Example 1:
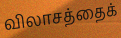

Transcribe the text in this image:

விலாசத்தைக்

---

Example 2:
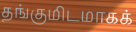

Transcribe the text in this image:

தங்குமிடமாகக்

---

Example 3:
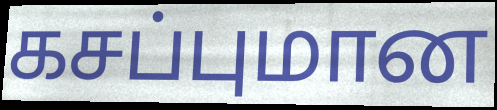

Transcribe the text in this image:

கசப்புமான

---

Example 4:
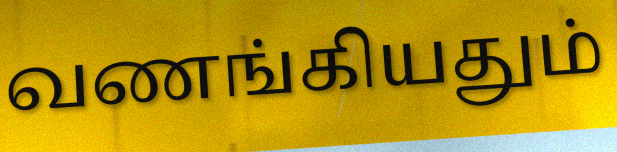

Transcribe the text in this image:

வணங்கியதும்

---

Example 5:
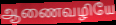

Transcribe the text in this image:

ஆணைவழியே